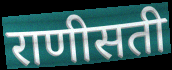
राणीसती